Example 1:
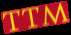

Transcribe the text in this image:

TTM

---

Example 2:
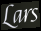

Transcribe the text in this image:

Lars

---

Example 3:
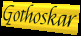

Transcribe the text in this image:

Gothoskar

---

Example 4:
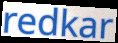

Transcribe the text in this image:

redkar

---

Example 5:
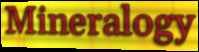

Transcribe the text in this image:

Mineralogy